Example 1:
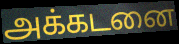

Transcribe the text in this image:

அக்கடனை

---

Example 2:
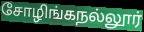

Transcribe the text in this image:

சோழிங்கநல்லூர்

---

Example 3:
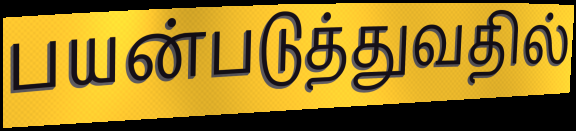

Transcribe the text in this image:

பயன்படுத்துவதில்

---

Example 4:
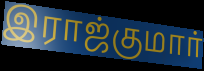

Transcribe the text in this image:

இராஜ்குமார்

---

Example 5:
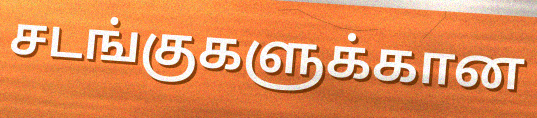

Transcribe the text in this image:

சடங்குகளுக்கான